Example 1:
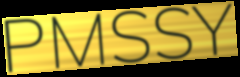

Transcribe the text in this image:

PMSSY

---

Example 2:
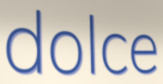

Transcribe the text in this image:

dolce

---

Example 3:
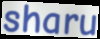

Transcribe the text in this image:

sharu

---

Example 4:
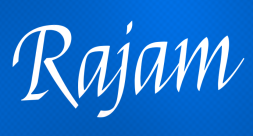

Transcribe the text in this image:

Rajam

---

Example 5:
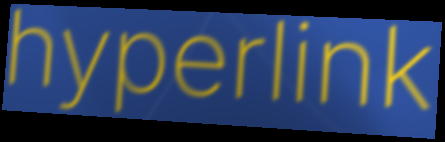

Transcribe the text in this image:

hyperlink